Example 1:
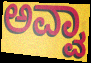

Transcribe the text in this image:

ಅವ್ವಾ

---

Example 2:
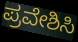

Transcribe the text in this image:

ಪ್ರವೇಶಿಸಿ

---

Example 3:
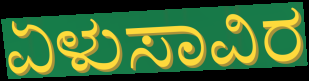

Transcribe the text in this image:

ಏಳುಸಾವಿರ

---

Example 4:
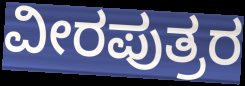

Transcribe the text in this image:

ವೀರಪುತ್ರರ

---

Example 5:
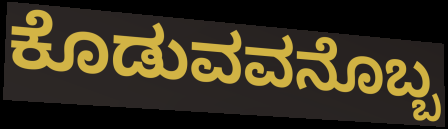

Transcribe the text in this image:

ಕೊಡುವವನೊಬ್ಬ